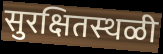
सुरक्षितस्थळी